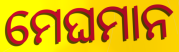
ମେଘମାନ